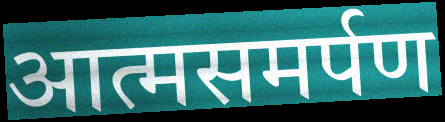
आत्मसमर्पण